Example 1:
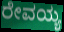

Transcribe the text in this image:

ರೇವಯ್ಯ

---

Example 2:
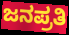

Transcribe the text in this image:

ಜನಪ್ರತಿ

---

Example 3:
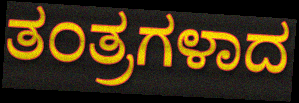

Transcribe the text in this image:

ತಂತ್ರಗಳಾದ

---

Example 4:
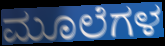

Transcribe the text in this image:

ಮೂಲೆಗಳ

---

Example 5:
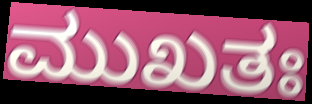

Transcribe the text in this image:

ಮುಖತಃ